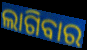
ଲାଗିବାର